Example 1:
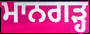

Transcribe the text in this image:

ਮਾਨਗੜ੍ਹ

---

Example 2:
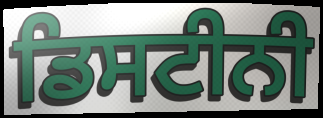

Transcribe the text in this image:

ਡਿਸਟੀਨੀ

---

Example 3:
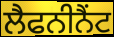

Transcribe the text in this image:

ਲੈਫਨੀਨੈਂਟ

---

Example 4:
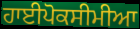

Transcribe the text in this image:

ਹਾਈਪੋਕਸੀਮੀਆ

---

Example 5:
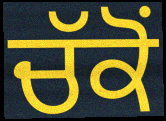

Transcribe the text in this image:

ਚੱਕੋਂ